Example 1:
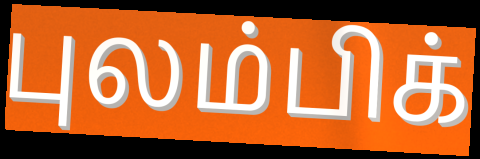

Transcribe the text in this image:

புலம்பிக்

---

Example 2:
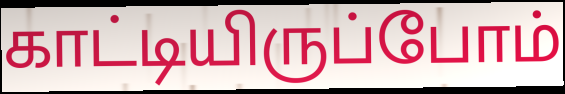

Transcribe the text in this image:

காட்டியிருப்போம்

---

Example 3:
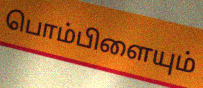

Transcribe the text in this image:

பொம்பிளையும்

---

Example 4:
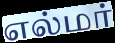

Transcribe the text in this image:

எல்மர்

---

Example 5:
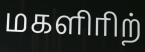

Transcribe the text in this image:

மகளிரிற்